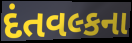
દંતવલ્કના